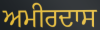
ਅਮੀਰਦਾਸ